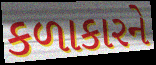
કળાકારને